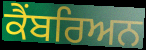
ਕੈਂਬਰਿਅਨ